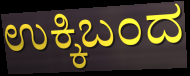
ಉಕ್ಕಿಬಂದ